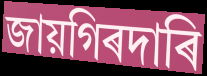
জায়গিৰদাৰি